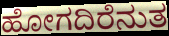
ಹೋಗದಿರೆನುತ